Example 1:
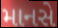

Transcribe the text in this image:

માનસે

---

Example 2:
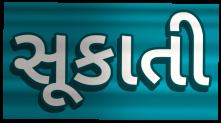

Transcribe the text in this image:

સૂકાતી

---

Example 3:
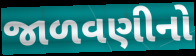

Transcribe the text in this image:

જાળવણીનો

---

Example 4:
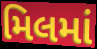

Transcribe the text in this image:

મિલમાં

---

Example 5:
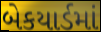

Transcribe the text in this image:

બેકયાર્ડમાં